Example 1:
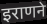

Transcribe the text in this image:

इराणने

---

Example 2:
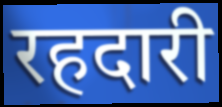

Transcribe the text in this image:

रहदारी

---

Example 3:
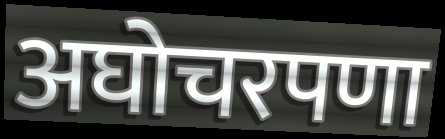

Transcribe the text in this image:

अघोचरपणा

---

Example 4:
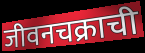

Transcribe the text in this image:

जीवनचक्राची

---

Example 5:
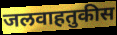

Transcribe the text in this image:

जलवाहतुकीस